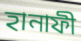
হানাফী